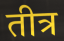
तीत्र